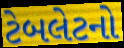
ટેબલેટનો